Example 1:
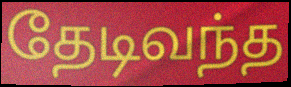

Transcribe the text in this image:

தேடிவந்த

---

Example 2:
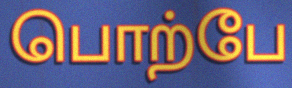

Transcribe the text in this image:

பொற்பே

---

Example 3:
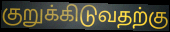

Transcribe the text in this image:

குறுக்கிடுவதற்கு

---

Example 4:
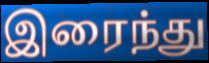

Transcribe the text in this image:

இரைந்து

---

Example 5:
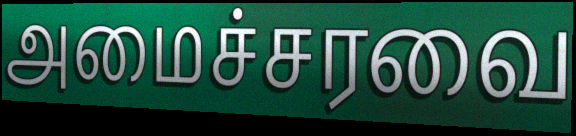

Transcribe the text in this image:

அமைச்சரவை